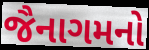
જૈનાગમનો